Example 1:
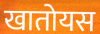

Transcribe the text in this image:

खातोयस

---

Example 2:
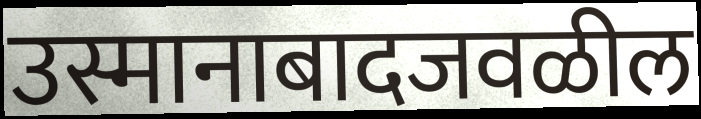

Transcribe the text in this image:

उस्मानाबादजवळील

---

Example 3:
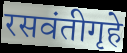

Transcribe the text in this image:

रसवंतीगृहे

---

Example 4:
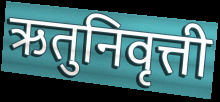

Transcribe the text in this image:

ऋतुनिवृत्ती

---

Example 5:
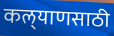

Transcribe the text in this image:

कल्याणसाठी